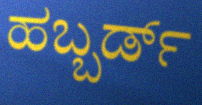
ಹಬ್ಬರ್ಡ್